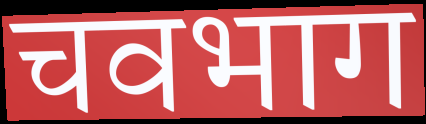
चवभाग